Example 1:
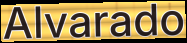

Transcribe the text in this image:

Alvarado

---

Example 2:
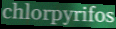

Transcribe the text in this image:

chlorpyrifos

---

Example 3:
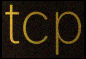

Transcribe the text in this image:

tcp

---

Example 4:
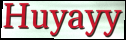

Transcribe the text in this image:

Huyayy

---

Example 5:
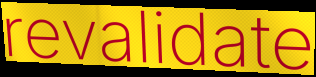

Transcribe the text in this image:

revalidate